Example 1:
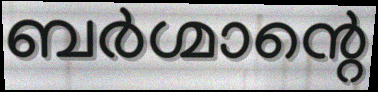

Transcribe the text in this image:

ബർഗ്മാന്റെ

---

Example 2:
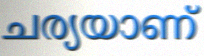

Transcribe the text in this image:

ചര്യയാണ്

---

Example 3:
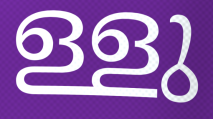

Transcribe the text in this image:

ള്ളു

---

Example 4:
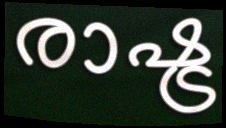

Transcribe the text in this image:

രാഷ്ട്ര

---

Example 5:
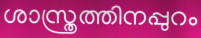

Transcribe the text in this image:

ശാസ്ത്രത്തിനപ്പുറം